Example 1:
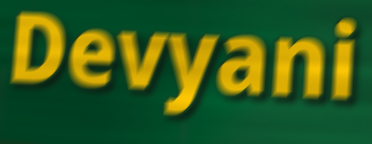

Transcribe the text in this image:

Devyani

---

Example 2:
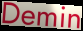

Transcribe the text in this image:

Demin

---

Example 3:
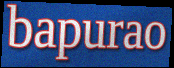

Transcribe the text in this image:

bapurao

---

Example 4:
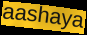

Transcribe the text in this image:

aashaya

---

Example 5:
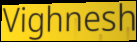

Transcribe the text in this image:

Vighnesh